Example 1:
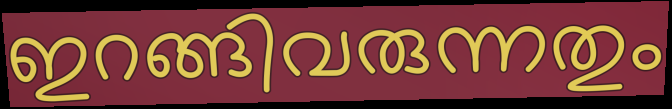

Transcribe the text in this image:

ഇറങ്ങിവരുന്നതും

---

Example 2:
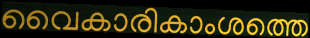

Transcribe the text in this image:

വൈകാരികാംശത്തെ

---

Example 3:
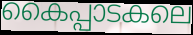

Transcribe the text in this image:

കൈപ്പാടകലെ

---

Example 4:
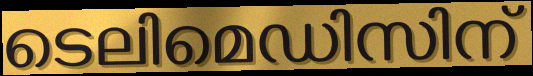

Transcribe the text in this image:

ടെലിമെഡിസിന്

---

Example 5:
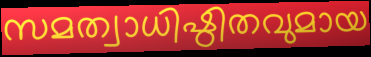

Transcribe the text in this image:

സമത്വാധിഷ്ഠിതവുമായ